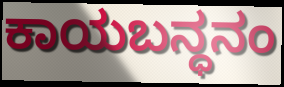
ಕಾಯಬನ್ಧನಂ